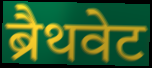
ब्रैथवेट